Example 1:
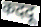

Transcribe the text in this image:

कददू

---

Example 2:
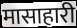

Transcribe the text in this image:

मासाहारी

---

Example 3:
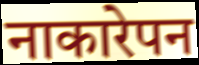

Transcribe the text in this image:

नाकारेपन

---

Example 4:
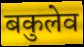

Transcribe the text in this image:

बकुलेव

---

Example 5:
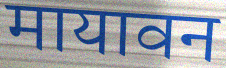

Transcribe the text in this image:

मायावन